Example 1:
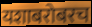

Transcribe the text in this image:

यशाबरोबरच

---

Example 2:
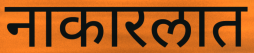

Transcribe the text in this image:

नाकारलात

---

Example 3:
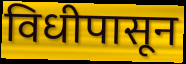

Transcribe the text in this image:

विधीपासून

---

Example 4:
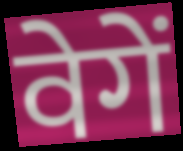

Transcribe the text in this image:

वेगें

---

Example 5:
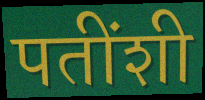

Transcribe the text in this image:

पतींशी